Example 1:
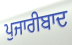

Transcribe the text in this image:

ਪੁਜਾਰੀਬਾਦ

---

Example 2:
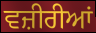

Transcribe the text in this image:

ਵਜ਼ੀਰੀਆਂ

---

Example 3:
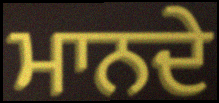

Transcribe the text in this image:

ਮਾਨਦੇ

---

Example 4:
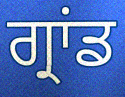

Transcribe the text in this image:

ਗ੍ਰਾਂਡ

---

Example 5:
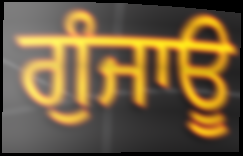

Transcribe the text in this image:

ਗੁੰਜਾਊ